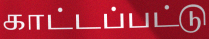
காட்டப்பட்டு